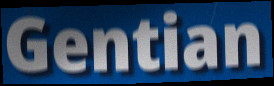
Gentian